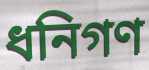
ধনিগণ